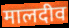
मालदीव